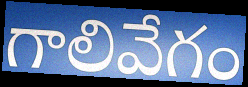
గాలివేగం